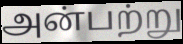
அன்பற்று